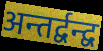
अन्तर्द्वन्द्व